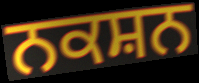
ਨਕਸ਼ਨ